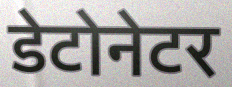
डेटोनेटर